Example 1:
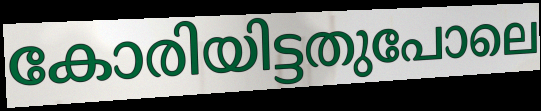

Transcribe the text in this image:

കോരിയിട്ടതുപോലെ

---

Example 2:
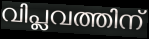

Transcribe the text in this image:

വിപ്ലവത്തിന്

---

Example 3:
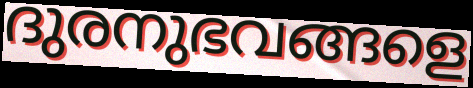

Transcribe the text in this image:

ദുരനുഭവങ്ങളെ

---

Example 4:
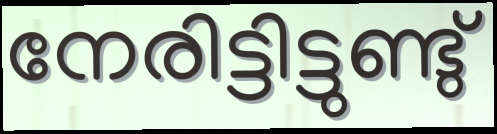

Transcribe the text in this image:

നേരിട്ടിട്ടുണ്ടു്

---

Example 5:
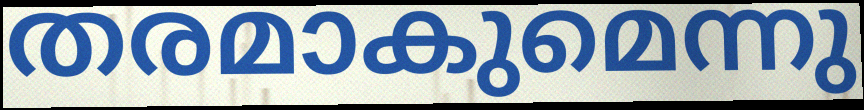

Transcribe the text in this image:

തരമാകുമെന്നു